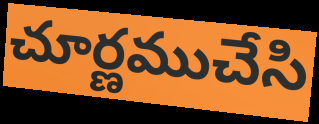
చూర్ణముచేసి